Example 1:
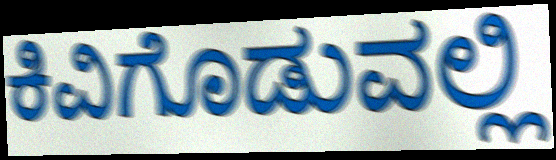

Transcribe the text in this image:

ಕಿವಿಗೊಡುವಲ್ಲಿ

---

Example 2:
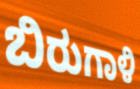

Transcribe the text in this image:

ಬಿರುಗಾಳಿ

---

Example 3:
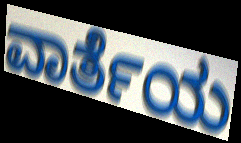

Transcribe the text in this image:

ವಾರ್ತೆಯ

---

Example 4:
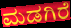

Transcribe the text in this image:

ಮಡಗಿರೆ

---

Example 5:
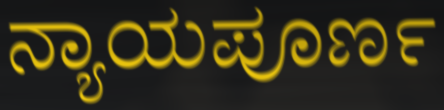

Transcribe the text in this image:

ನ್ಯಾಯಪೂರ್ಣ